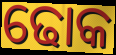
ଢୋକ